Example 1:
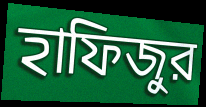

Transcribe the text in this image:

হাফিজুর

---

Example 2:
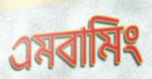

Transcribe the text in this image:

এমবামিং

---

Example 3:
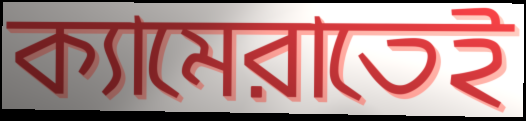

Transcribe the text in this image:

ক্যামেরাতেই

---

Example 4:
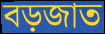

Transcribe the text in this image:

বড়জাত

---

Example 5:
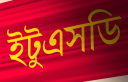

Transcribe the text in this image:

ইটুএসডি